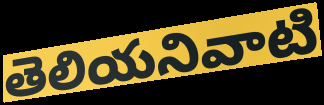
తెలియనివాటి